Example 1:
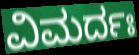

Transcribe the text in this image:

ವಿಮರ್ದಃ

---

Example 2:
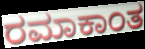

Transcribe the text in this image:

ರಮಾಕಾಂತ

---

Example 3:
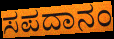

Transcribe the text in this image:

ಸಪದಾನಂ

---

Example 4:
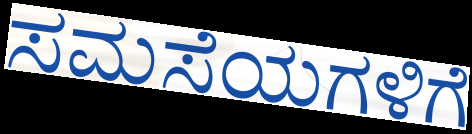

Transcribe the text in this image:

ಸಮಸೆಯಗಳಿಗೆ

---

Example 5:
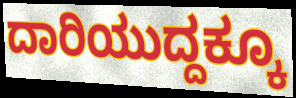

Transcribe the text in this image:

ದಾರಿಯುದ್ದಕ್ಕೂ